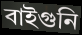
বাইগুনি